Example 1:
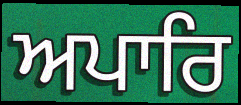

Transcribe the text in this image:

ਅਪਾਰਿ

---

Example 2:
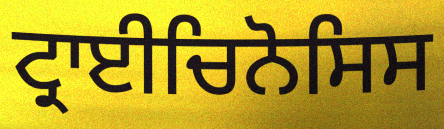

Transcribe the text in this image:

ਟ੍ਰਾਈਚਿਨੋਸਿਸ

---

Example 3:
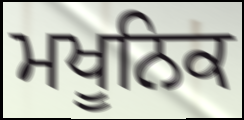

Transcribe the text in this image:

ਮਖੂਨਿਕ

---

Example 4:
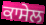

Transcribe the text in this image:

ਕਾਸੇਲ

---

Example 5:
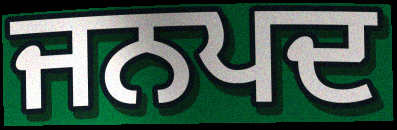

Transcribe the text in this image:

ਜਨਪਦ